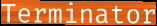
Terminator